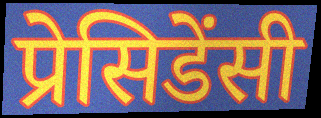
प्रेसिडेंसी